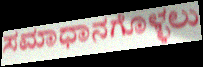
ಸಮಾಧಾನಗೊಳ್ಳಲು